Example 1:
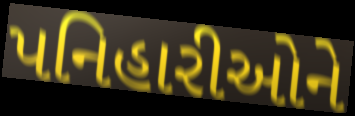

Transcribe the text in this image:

પનિહારીઓને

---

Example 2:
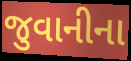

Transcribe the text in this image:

જુવાનીના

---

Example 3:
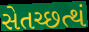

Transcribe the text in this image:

સેતચ્છત્થં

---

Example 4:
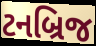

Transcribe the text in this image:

ટનબ્રિજ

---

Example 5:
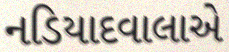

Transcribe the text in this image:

નડિયાદવાલાએ